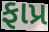
ફાપ્ર